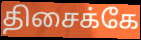
திசைக்கே